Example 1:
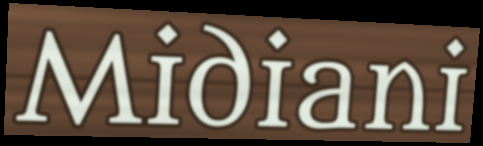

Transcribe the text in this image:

Midiani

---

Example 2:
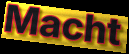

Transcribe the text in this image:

Macht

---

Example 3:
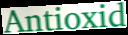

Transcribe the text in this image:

Antioxid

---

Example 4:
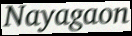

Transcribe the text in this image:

Nayagaon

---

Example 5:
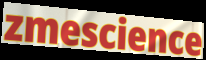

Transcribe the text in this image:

zmescience